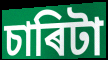
চাৰিটা